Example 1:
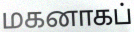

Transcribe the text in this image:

மகனாகப்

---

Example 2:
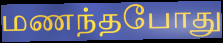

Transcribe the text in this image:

மணந்தபோது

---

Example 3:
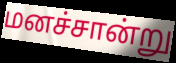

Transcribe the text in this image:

மனச்சான்று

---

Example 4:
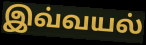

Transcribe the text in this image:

இவ்வயல்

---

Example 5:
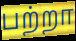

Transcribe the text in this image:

பற்றா